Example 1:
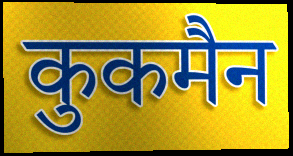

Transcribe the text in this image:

कुकमैन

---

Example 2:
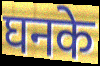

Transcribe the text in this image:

घनके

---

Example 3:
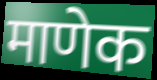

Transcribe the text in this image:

माणेक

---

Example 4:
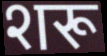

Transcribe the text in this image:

शरू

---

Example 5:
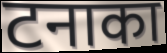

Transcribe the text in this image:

टनाका